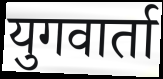
युगवार्ता